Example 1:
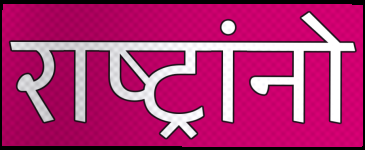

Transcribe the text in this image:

राष्ट्रांनो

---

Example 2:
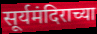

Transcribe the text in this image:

सूर्यमंदिराच्या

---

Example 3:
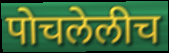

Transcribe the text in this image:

पोचलेलीच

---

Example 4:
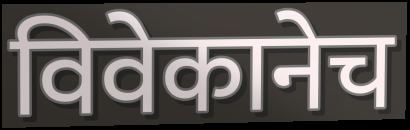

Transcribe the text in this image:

विवेकानेच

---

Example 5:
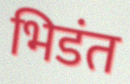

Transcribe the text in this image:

भिडंत